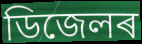
ডিজেলৰ